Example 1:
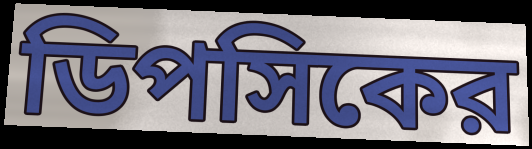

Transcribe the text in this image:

ডিপসিকের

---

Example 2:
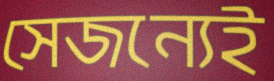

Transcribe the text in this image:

সেজন্যেই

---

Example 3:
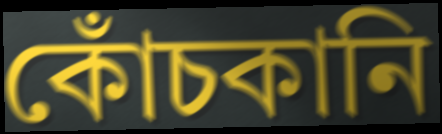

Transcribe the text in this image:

কোঁচকানি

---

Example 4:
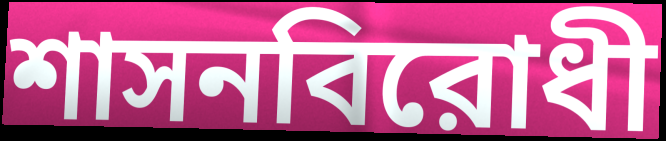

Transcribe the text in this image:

শাসনবিরোধী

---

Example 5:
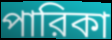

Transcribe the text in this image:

পারিকা